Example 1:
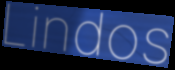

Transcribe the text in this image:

Lindos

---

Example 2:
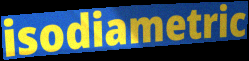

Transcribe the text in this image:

isodiametric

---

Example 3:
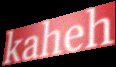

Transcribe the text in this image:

kaheh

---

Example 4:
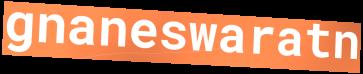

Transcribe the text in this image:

gnaneswaratn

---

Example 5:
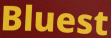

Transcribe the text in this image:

Bluest